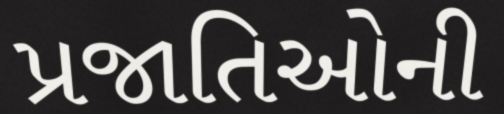
પ્રજાતિઓની